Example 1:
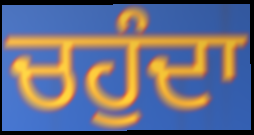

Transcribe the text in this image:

ਚਹੁੰਦਾ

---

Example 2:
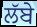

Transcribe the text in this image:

ਲੱਬੇ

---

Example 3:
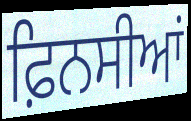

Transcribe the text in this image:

ਫ਼ਿਨਸੀਆਂ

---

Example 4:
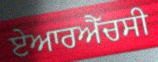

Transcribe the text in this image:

ਏਆਰਐੱਚਸੀ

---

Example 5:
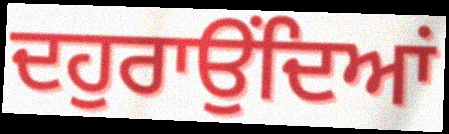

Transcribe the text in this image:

ਦਹੁਰਾਉਂਦਿਆਂ